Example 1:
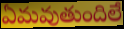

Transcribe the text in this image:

ఏమవుతుందిలే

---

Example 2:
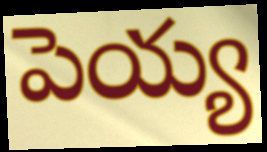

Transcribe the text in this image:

పెయ్య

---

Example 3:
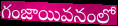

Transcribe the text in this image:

గంజాయివనంలో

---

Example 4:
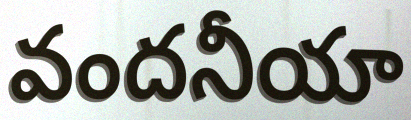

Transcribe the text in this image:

వందనీయా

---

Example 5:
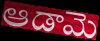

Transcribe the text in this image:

ఆడామె